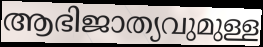
ആഭിജാത്യവുമുള്ള